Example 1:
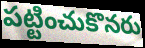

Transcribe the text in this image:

పట్టించుకొనరు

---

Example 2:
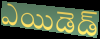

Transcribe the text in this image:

ఎయిడెడ్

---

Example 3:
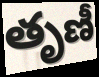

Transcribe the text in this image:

తృణీ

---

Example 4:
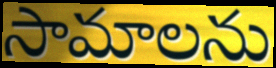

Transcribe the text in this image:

సామాలను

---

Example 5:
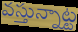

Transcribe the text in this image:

వస్తున్నాట్ట